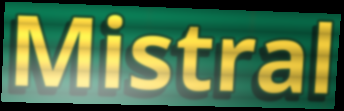
Mistral